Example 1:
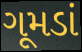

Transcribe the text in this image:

ગૂમડાં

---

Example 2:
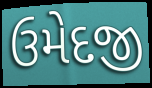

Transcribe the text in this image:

ઉમેદજી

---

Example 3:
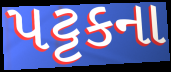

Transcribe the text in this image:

પટ્ટકના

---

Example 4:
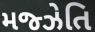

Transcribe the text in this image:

મજ્ઝેતિ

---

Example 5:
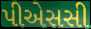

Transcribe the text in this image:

પીએસસી